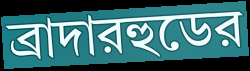
ব্রাদারহুডের